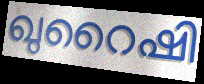
ഖുറൈഷി